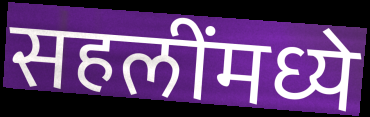
सहलींमध्ये